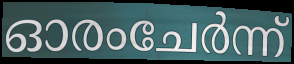
ഓരംചേർന്ന്